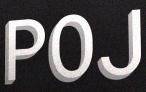
POJ